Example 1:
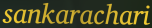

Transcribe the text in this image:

sankarachari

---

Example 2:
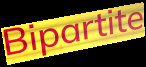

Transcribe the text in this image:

Bipartite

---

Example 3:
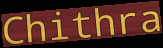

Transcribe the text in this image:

Chithra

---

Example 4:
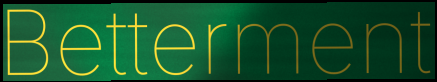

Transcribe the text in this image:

Betterment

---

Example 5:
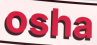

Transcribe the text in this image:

osha